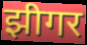
झीगर